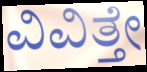
ವಿವಿತ್ತೇ